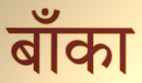
बाँका